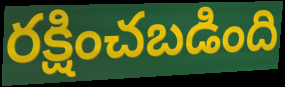
రక్షించబడింది